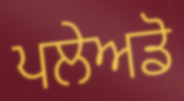
ਪਲੇਅਡੋ